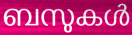
ബസുകൾ